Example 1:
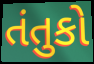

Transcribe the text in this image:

તંતુકો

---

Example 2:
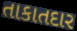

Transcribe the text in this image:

તાકાતદાર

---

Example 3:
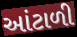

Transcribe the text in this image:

આંટાળી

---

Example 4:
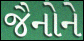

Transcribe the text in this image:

જૈનોને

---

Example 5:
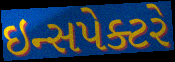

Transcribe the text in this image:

ઇન્સપેક્ટરે